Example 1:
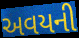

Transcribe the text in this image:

અવયની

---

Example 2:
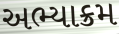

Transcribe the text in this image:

અભ્યાક્રમ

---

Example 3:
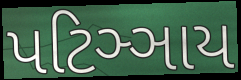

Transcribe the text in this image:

પટિઞ્ઞાય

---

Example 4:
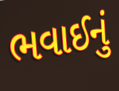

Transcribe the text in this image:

ભવાઈનું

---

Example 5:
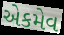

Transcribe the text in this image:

એકમેવ